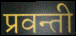
प्रवन्ती